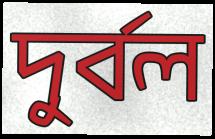
দুর্বল